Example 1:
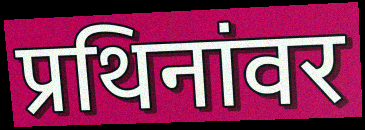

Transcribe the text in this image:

प्रथिनांवर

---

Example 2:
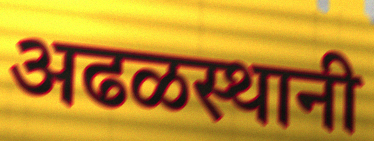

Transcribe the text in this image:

अढळस्थानी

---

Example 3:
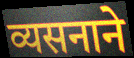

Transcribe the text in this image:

व्यसनाने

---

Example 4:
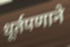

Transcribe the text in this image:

धूर्तपणाने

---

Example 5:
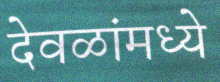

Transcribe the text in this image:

देवळांमध्ये